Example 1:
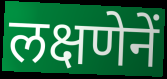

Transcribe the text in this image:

लक्षणेनें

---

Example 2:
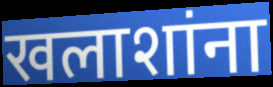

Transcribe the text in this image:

खलाशांना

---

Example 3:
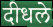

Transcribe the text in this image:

दीधले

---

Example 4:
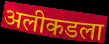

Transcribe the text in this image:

अलीकडला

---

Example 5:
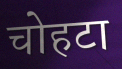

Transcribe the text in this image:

चोहटा